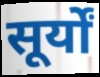
सूर्यों